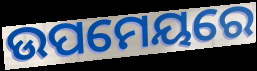
ଉପମେୟରେ